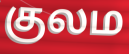
குலம